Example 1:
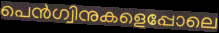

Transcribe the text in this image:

പെൻഗ്വിനുകളെപ്പോലെ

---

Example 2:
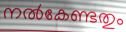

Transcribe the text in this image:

നൽകേണ്ടതും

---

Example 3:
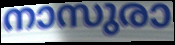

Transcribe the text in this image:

നാസുരാ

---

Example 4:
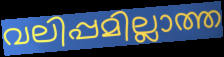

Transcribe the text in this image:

വലിപ്പമില്ലാത്ത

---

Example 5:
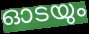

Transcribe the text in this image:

ഓടയും